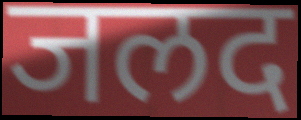
जलद